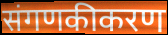
संगणकीकरण